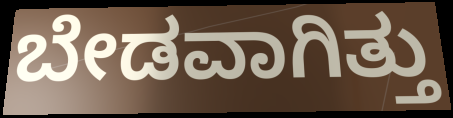
ಬೇಡವಾಗಿತ್ತು